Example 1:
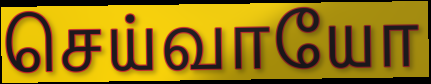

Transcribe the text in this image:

செய்வாயோ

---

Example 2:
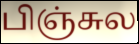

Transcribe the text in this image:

பிஞ்சுல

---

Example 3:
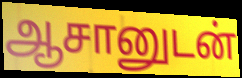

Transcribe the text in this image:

ஆசானுடன்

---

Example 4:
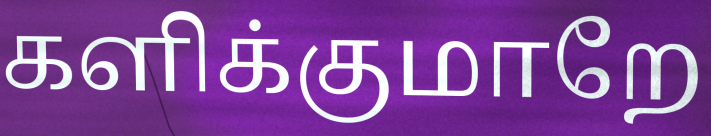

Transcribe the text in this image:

களிக்குமாறே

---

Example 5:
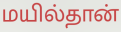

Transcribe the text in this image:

மயில்தான்